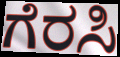
ಗೆರಸಿ